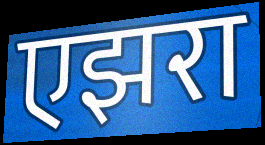
एझरा